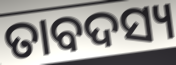
ତାବଦସ୍ୟ